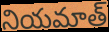
నియమాత్